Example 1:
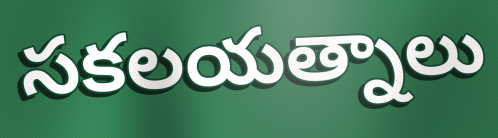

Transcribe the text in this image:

సకలయత్నాలు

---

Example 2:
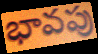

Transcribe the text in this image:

భావపు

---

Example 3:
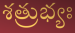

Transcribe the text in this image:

శత్రుభ్యః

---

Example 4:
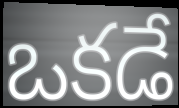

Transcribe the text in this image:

ఒకడే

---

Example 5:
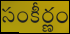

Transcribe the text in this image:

సంకీర్ణం